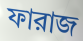
ফারাজ